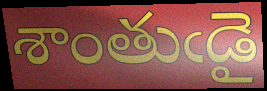
శాంతుఁడై